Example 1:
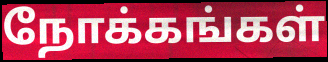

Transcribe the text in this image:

நோக்கங்கள்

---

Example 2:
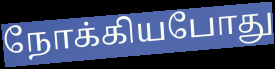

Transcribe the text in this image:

நோக்கியபோது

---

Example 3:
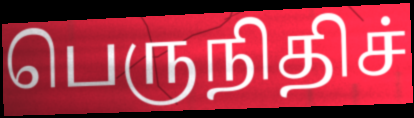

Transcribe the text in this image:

பெருநிதிச்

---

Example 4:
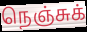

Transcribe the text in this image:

நெஞ்சுக்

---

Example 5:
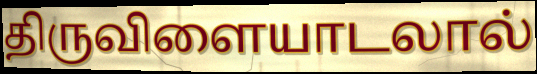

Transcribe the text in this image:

திருவிளையாடலால்